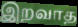
இறவாத